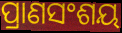
ପ୍ରାଣସଂଶୟ